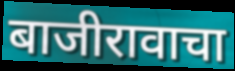
बाजीरावाचा